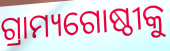
ଗ୍ରାମ୍ୟଗୋଷ୍ଠୀକୁ